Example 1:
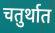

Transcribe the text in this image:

चतुर्थात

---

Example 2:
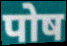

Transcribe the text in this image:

पोष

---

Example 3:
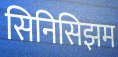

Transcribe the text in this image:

सिनिसिझम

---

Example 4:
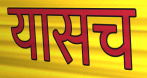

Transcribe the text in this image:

यासच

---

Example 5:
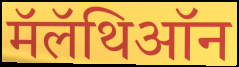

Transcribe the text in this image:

मॅलॅथिऑन